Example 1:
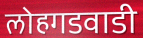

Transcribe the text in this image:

लोहगडवाडी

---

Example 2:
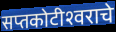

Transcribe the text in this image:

सप्तकोटीश्वराचे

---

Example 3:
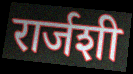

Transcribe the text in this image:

रार्जशी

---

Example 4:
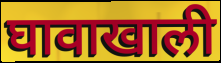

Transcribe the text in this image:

घावाखाली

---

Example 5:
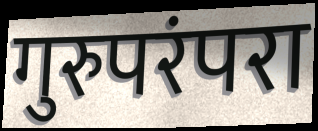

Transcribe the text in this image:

गुरुपरंपरा